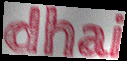
dhai